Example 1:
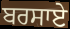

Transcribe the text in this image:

ਬਰਸਾਏ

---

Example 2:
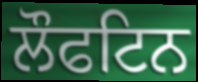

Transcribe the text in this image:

ਲੌਫਟਿਨ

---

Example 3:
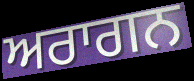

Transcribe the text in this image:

ਅਰਾਗਨ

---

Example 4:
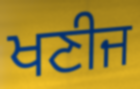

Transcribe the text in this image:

ਖਣੀਜ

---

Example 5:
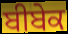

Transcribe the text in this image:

ਬੀਬੇਕ